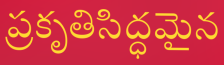
ప్రకృతిసిద్ధమైన